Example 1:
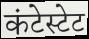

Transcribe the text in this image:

कंटेस्टेट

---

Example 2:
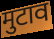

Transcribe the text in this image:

मुटाव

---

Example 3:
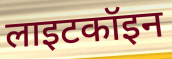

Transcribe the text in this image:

लाइटकॉइन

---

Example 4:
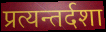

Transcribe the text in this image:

प्रत्यन्तर्दशा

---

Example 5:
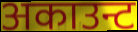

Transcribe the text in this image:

अकाउन्ट